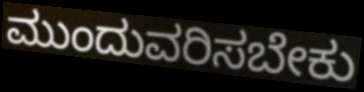
ಮುಂದುವರಿಸಬೇಕು